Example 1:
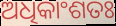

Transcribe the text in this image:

ଅଧିକାଂଶତଃ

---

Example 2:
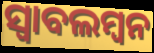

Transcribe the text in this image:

ସ୍ୱାବଲମ୍ବନ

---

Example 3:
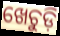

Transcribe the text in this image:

ଖେଚୁଡ଼ି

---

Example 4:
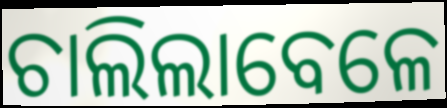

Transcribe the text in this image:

ଚାଲିଲାବେଳେ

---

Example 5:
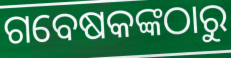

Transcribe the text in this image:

ଗବେଷକଙ୍କଠାରୁ